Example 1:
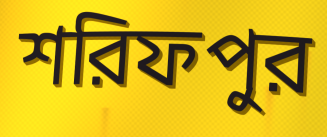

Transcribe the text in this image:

শরিফপুর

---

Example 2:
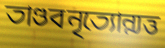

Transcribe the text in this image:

তাণ্ডবনৃত্যোন্মত্ত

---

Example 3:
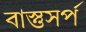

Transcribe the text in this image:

বাস্তুসর্প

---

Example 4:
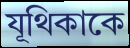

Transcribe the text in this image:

যূথিকাকে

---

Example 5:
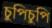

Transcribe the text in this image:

চুপিচুপি